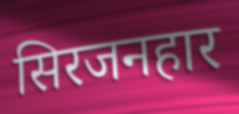
सिरजनहार